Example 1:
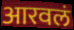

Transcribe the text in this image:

आरवलं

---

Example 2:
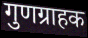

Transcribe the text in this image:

गुणग्राहक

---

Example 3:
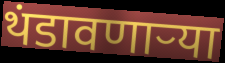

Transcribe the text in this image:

थंडावणाऱ्या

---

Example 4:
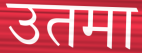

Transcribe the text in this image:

उतमा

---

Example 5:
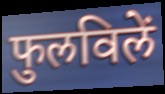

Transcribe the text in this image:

फुलविलें